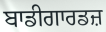
ਬਾਡੀਗਾਰਡਜ਼